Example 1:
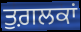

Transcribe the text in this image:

ਤੁਗ਼ਲਕਾਂ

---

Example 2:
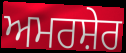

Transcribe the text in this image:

ਅਮਰਸ਼ੇਰ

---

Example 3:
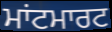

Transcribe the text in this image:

ਮਾਂਟਮਾਰਟ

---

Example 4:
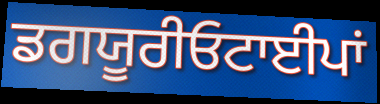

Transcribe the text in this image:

ਡਗਯੂਰੀਓਟਾਈਪਾਂ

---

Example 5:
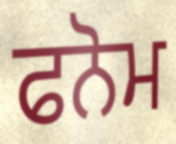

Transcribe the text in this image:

ਫਨੋਮ